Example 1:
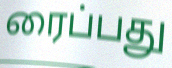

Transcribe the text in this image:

ரைப்பது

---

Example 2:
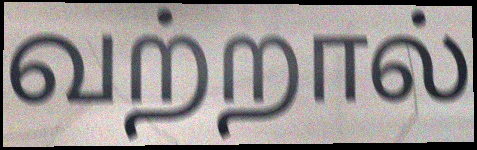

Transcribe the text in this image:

வற்றால்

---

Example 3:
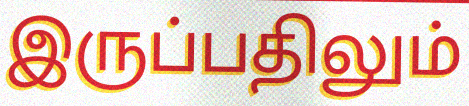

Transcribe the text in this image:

இருப்பதிலும்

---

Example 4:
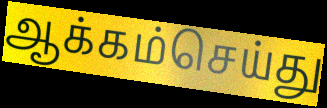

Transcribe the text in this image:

ஆக்கம்செய்து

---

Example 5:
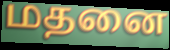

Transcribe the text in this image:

மதனை